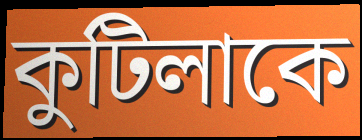
কুটিলাকে